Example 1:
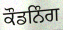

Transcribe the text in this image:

ਕੌਡਨਿੰਗ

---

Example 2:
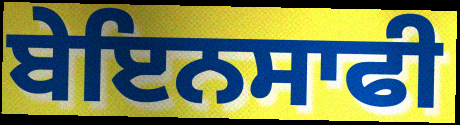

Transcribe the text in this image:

ਬੇਇਨਸਾਫੀ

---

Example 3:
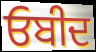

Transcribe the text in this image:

ਓਬੀਦ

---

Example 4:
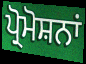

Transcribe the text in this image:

ਪ੍ਰੋਮੋਸ਼ਨਾਂ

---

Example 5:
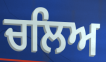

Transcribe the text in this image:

ਚਲਿਅ